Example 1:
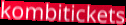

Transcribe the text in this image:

kombitickets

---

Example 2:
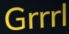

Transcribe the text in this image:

Grrrl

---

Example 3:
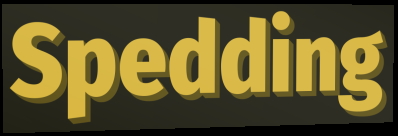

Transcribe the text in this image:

Spedding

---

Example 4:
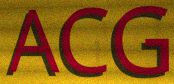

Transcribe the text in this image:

ACG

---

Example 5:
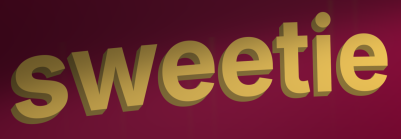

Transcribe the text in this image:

sweetie